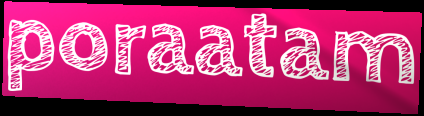
poraatam